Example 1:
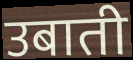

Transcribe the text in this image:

उबाती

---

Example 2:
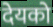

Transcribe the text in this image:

देयको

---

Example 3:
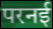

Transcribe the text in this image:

परनई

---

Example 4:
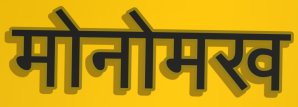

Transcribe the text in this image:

मोनोमख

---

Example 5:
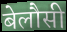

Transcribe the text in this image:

बेलौसी